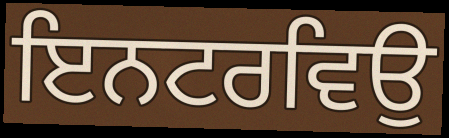
ਇਨਟਰਵਿਉ